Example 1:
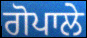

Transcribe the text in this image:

ਗੋਪਾਲੇ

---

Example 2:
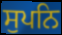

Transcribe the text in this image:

ਸੁਪਨਿ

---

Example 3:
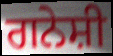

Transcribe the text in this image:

ਗਨੇਸ਼ੀ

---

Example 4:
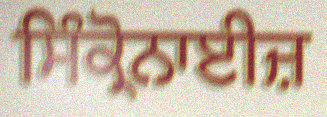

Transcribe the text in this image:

ਸਿੰਕ੍ਰੋਨਾਈਜ਼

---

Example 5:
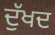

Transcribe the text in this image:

ਦੁੱਖਦ